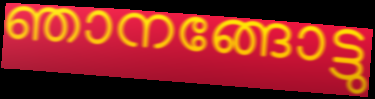
ഞാനങ്ങോട്ടു